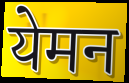
येमन